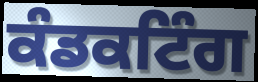
ਕੰਡਕਟਿੰਗ